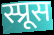
स्प्रूस